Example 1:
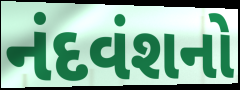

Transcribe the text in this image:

નંદવંશનો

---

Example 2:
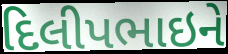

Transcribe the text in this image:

દિલીપભાઇને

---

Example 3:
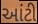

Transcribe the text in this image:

આંટી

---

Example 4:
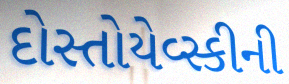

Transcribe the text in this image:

દોસ્તોયેવ્સ્કીની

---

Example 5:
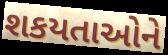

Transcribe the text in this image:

શકયતાઓને